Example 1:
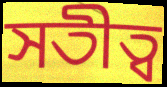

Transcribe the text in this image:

সতীত্ব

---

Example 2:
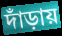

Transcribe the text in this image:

দাঁড়ায়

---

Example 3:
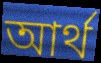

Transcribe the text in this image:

আৰ্থ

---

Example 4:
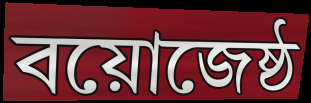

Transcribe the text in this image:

বয়োজেষ্ঠ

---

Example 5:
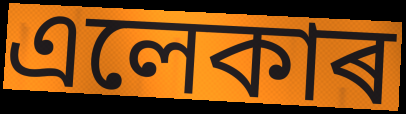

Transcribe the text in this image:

এলেকাৰ